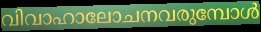
വിവാഹാലോചനവരുമ്പോൾ